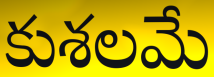
కుశలమే